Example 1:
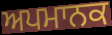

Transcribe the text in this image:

ਅਪਮਾਨਕ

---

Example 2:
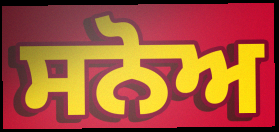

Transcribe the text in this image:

ਸਨੋਅ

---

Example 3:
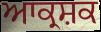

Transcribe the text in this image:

ਆਕ੍ਰਸ਼ਕ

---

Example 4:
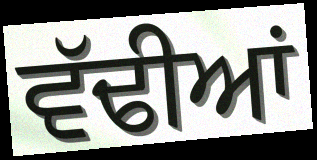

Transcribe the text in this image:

ਵੱਢੀਆਂ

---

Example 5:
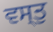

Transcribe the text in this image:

ਵਸ੍ਤੁ